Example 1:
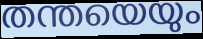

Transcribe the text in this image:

തന്തയെയും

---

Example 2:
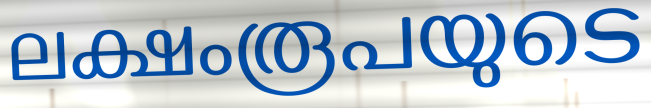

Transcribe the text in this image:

ലക്ഷംരൂപയുടെ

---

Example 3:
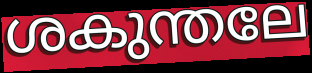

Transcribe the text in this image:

ശകുന്തലേ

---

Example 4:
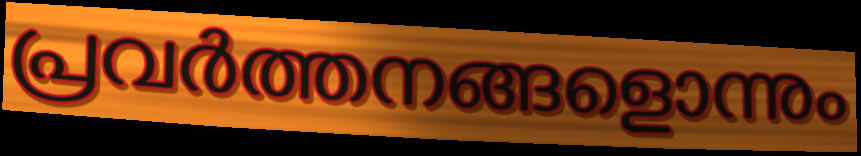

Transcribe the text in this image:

പ്രവർത്തനങ്ങളൊന്നും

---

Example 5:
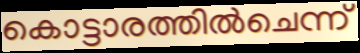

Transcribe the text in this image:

കൊട്ടാരത്തിൽചെന്ന്